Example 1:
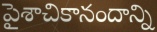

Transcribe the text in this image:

పైశాచికానందాన్ని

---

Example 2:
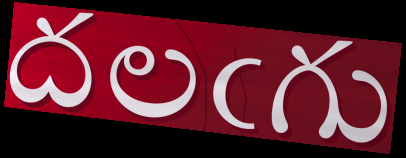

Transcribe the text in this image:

దలఁగు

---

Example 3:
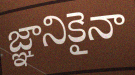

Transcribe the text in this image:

జ్ఞానికైనా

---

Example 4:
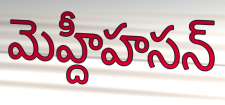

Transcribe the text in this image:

మెహ్దీహసన్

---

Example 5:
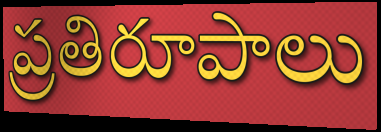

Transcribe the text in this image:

ప్రతిరూపాలు